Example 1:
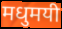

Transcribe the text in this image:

मधुमयी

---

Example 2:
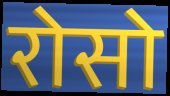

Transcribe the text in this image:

रोसो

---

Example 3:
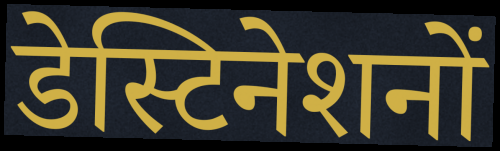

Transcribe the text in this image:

डेस्टिनेशनों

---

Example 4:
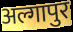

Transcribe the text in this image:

अल्गापुर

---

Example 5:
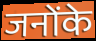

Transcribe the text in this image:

जनोंके